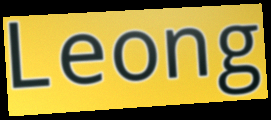
Leong